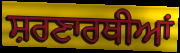
ਸ਼ਰਣਾਰਥੀਆਂ